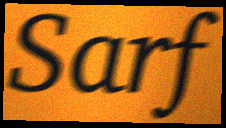
Sarf